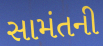
સામંતની